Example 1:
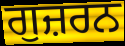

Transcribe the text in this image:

ਗੁਜ਼ਰਨ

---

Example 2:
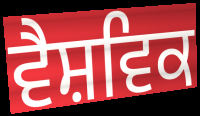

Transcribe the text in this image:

ਵੈਸ਼ਵਿਕ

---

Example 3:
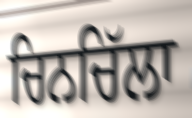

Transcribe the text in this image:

ਚਿਨਚਿੱਲਾ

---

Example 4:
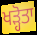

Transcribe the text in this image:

ਖੜ੍ਹੋਤਾ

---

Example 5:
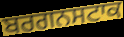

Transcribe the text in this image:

ਬਰਗਨਸਟਾਕ